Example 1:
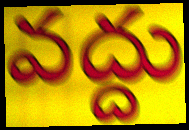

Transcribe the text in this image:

వద్దు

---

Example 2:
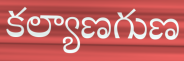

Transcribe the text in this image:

కల్యాణగుణ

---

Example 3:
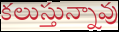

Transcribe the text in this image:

కలుస్తున్నావు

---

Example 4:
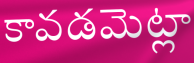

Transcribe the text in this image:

కావడమెట్లా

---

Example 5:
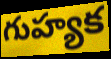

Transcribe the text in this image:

గుహ్యక